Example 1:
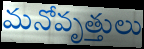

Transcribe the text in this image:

మనోవృత్తులు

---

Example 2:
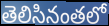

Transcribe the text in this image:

తెలిసినంతలో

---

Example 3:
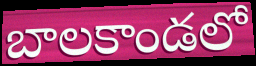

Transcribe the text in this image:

బాలకాండలో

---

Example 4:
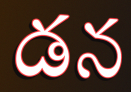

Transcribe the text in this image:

డన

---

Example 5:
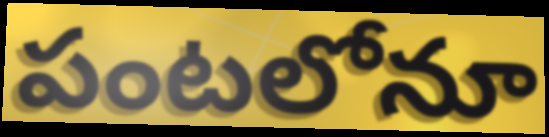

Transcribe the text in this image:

పంటలోనూ